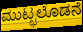
ಮುಟ್ಟಲೊಡನೆ